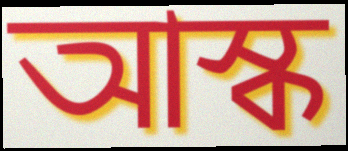
আস্ক